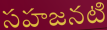
సహజనటి